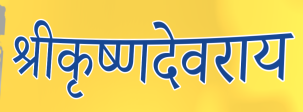
श्रीकृष्णदेवराय